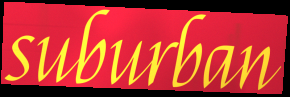
suburban